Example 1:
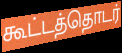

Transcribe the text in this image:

கூட்டத்தொடர்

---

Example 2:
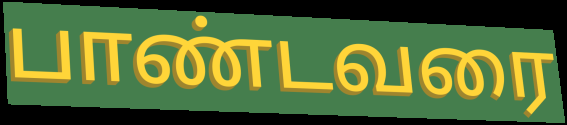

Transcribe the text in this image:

பாண்டவரை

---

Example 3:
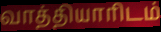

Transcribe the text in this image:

வாத்தியாரிடம்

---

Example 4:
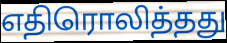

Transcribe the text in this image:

எதிரொலித்தது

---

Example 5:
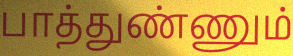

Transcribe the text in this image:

பாத்துண்ணும்